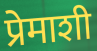
प्रेमाशी